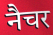
नैचर